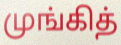
முங்கித்